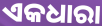
ଏକଧାରା